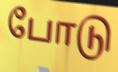
போடு